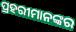
ପ୍ରହରୀମାନଙ୍କର